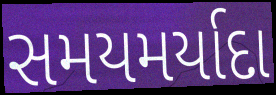
સમયમર્યાદા